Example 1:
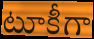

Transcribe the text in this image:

టూకీగా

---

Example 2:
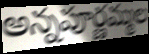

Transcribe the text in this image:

అన్నపూర్ణమ్మల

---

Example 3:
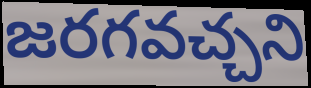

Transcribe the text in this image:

జరగవచ్చని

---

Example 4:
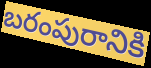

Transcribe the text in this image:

బరంపురానికి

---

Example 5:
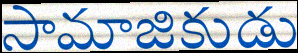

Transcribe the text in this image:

సామాజికుడు